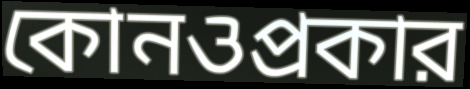
কোনওপ্রকার